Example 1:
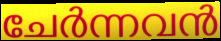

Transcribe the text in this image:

ചേർന്നവൻ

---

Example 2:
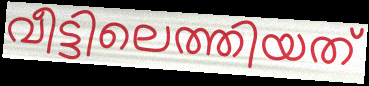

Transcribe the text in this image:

വീട്ടിലെത്തിയത്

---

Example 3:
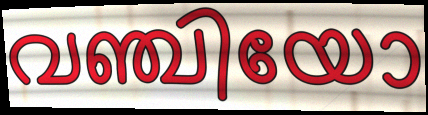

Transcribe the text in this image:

വഞ്ചിയോ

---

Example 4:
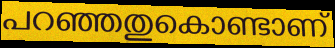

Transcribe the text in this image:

പറഞ്ഞതുകൊണ്ടാണ്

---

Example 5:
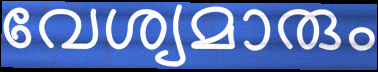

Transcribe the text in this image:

വേശ്യമാരും